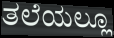
ತಲೆಯಲ್ಲೂ